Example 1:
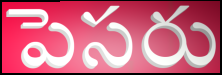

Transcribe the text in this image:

పెసరు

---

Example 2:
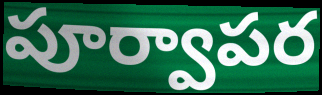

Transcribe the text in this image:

పూర్వాపర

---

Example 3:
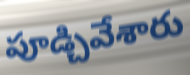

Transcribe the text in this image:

పూడ్చివేశారు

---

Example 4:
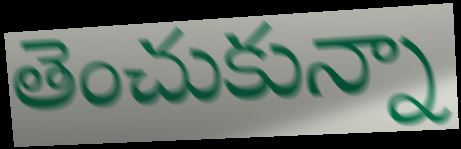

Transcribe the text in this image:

తెంచుకున్నా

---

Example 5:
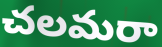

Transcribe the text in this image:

చలమరా